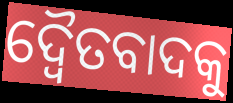
ଦ୍ୱୈତବାଦକୁ